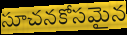
సూచనకోసమైన